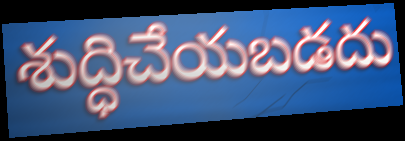
శుద్ధిచేయబడదు